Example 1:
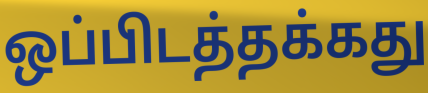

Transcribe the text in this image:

ஒப்பிடத்தக்கது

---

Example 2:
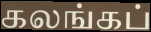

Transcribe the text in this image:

கலங்கப்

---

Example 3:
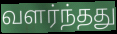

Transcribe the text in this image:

வளர்ந்தது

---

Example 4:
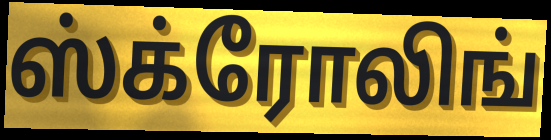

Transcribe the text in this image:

ஸ்க்ரோலிங்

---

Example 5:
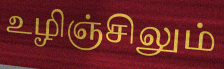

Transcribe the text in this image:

உழிஞ்சிலும்